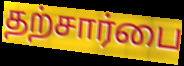
தற்சார்பை